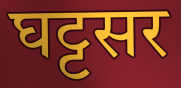
घट्टसर